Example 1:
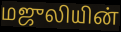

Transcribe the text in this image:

மஜுலியின்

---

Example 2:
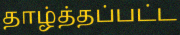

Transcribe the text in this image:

தாழ்த்தப்பட்ட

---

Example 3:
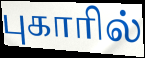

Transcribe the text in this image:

புகாரில்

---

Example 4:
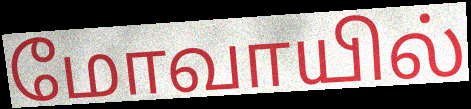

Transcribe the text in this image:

மோவாயில்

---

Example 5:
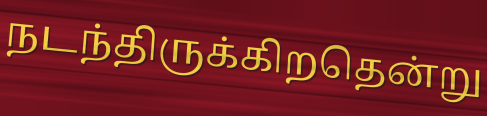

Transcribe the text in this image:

நடந்திருக்கிறதென்று